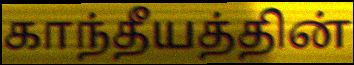
காந்தீயத்தின்